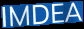
IMDEA